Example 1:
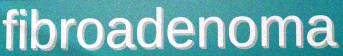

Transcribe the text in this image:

fibroadenoma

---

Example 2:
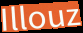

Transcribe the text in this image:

Illouz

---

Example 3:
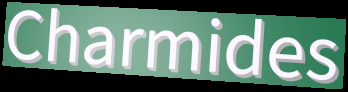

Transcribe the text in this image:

Charmides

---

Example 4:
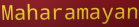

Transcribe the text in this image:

Maharamayan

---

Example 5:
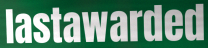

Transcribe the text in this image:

lastawarded